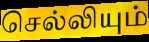
செல்லியும்